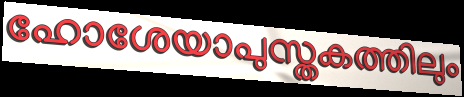
ഹോശേയാപുസ്തകത്തിലും